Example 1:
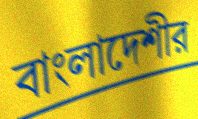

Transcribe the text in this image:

বাংলাদেশীর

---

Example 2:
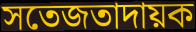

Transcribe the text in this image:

সতেজতাদায়ক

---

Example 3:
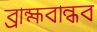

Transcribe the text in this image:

ব্রাহ্মবান্ধব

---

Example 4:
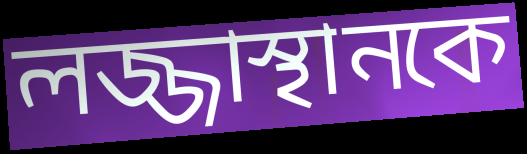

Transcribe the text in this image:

লজ্জাস্থানকে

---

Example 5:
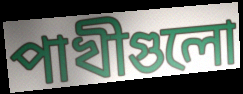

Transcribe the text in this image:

পাখীগুলো